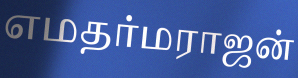
எமதர்மராஜன்